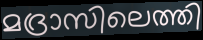
മദ്രാസിലെത്തി